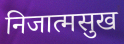
निजात्मसुख